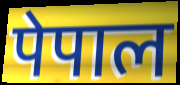
पेपाल